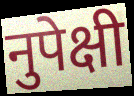
नुपेक्षी